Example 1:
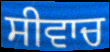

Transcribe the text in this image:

ਸੀਵਾਚ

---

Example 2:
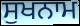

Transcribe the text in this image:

ਸੁਖਨਾਮ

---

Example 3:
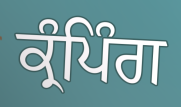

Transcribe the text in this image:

ਕ੍ਰੰਪਿੰਗ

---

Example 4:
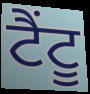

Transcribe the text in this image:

ਟੈਂਟੂ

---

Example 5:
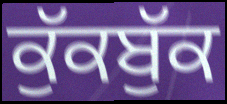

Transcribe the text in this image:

ਕੁੱਕਬੁੱਕ